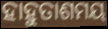
ହାହୁତାଶମୟ